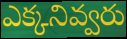
ఎక్కనివ్వరు